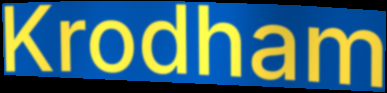
Krodham